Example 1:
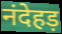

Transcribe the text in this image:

नंदेहड़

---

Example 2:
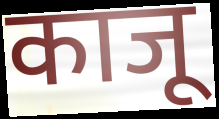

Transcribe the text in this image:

काजू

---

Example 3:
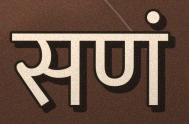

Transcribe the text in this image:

सणं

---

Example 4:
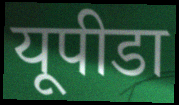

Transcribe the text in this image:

यूपीडा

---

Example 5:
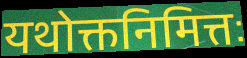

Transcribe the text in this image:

यथोक्तनिमित्तः